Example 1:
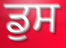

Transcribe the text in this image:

ਡੁਸ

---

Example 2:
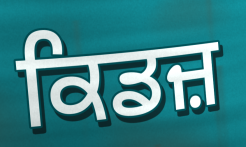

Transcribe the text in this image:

ਕਿਡਜ਼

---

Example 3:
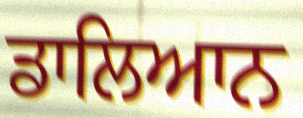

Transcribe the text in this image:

ਡਾਲਿਆਨ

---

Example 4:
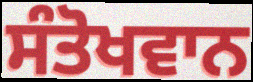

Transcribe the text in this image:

ਸੰਤੋਖਵਾਨ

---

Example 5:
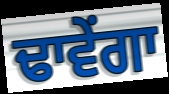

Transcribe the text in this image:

ਢਾਵੇਂਗਾ